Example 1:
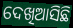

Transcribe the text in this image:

ଦେଖିଆସିଛି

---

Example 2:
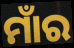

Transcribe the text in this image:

ମାଁର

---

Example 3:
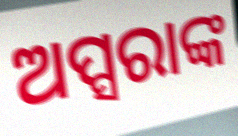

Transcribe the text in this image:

ଅପ୍ସରାଙ୍କ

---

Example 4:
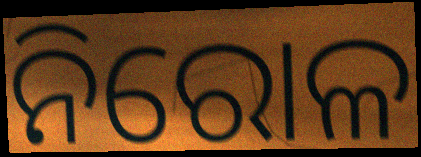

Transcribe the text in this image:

ନିରୋଳ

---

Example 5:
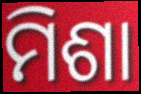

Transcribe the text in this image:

ମିଶା